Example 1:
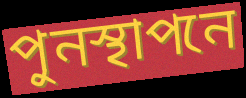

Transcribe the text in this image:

পুনস্থাপনে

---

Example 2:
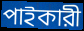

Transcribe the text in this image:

পাইকারী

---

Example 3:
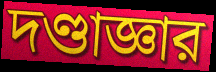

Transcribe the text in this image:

দণ্ডাজ্ঞার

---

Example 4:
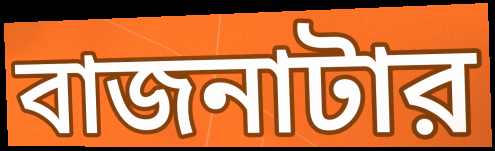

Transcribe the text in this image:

বাজনাটার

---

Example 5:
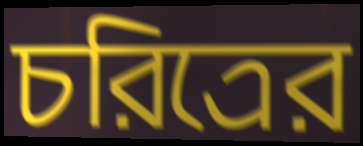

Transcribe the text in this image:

চরিত্রের